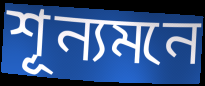
শূন্যমনে